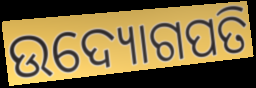
ଉଦ୍ୟୋଗପତି